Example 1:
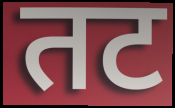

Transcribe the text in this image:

तट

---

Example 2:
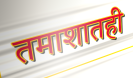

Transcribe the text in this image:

तमाशातही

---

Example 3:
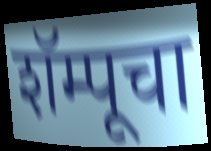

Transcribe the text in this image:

शॅम्पूचा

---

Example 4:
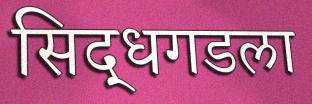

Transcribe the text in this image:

सिद्धगडला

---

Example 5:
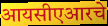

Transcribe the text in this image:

आयसीएआरचे